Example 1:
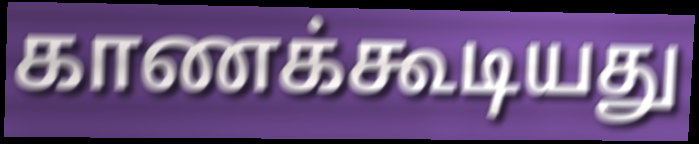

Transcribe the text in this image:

காணக்கூடியது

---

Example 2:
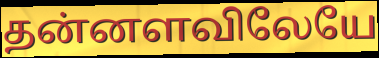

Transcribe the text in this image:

தன்னளவிலேயே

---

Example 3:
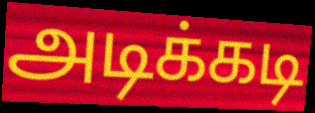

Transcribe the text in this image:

அடிக்கடி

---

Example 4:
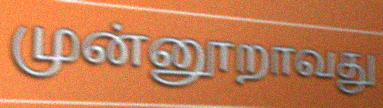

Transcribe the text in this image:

முன்னூறாவது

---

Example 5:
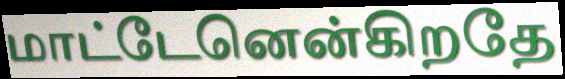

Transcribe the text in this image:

மாட்டேனென்கிறதே